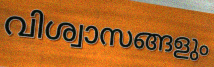
വിശ്വാസങ്ങളും